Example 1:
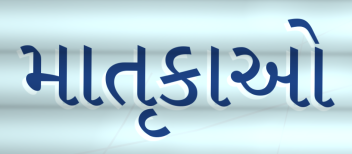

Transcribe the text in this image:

માતૃકાઓ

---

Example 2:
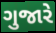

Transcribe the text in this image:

ગુજારે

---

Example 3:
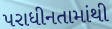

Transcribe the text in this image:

પરાધીનતામાંથી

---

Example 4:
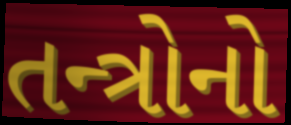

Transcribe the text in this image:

તન્ત્રોનો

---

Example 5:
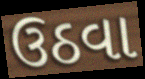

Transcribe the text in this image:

ઉઠવા